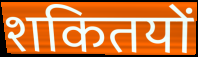
शकितयों